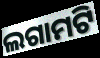
ଲଗାମଟି